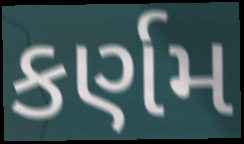
કર્ણમ